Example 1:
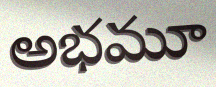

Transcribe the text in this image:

అభమూ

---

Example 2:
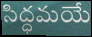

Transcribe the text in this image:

సిద్ధమయే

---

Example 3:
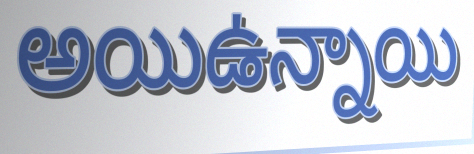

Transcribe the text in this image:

అయిఉన్నాయి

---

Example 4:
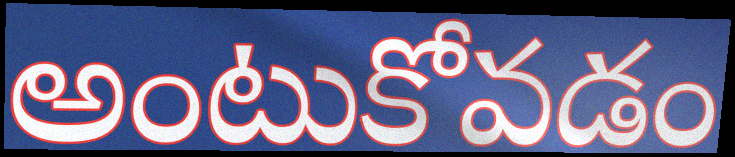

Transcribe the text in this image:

అంటుకోవడం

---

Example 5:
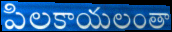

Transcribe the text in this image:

పిలకాయలంతా